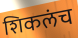
शिकलंच